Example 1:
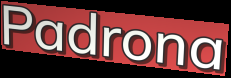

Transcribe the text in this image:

Padrona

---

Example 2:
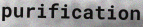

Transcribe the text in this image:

purification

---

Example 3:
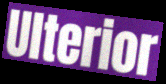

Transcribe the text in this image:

Ulterior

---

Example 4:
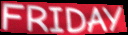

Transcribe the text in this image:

FRIDAY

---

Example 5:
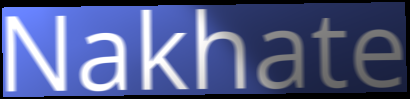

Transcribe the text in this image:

Nakhate